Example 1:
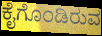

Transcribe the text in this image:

ಕೈಗೊಂಡಿರುವ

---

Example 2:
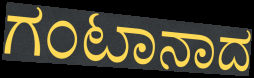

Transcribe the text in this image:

ಗಂಟಾನಾದ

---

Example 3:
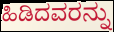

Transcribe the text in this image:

ಹಿಡಿದವರನ್ನು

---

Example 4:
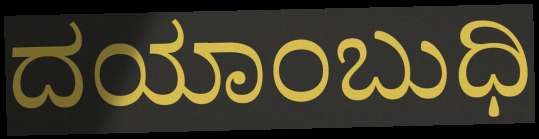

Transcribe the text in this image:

ದಯಾಂಬುಧಿ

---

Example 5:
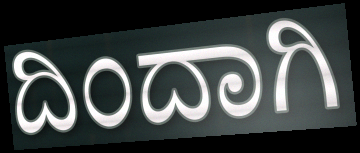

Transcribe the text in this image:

ದಿಂದಾಗಿ